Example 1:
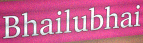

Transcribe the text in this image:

Bhailubhai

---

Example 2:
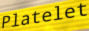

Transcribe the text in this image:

Platelet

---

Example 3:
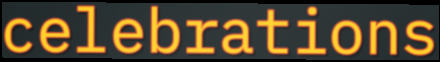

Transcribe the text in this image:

celebrations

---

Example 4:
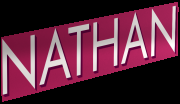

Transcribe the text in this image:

NATHAN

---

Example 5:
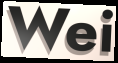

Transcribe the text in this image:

Wei